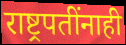
राष्ट्रपतींनाही